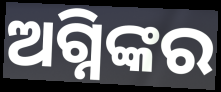
ଅଗ୍ନିଙ୍କର